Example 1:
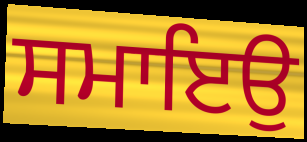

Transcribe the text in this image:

ਸਮਾਇਉ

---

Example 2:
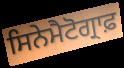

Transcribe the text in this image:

ਸਿਨੇਮੈਟੋਗ੍ਰਾਫ਼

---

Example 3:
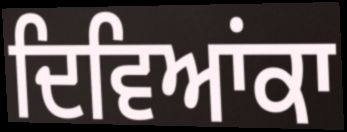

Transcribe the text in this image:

ਦਿਵਿਆਂਕਾ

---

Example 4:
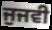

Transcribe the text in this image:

ਜੁਜਵੀ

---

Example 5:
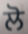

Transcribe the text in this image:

ਲੋ